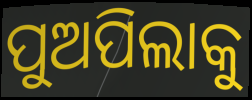
ପୁଅପିଲାକୁ